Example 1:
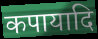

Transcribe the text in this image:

कपायादि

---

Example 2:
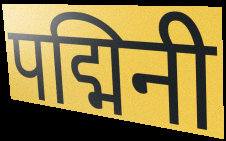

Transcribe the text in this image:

पद्मिनी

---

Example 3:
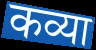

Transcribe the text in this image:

कव्या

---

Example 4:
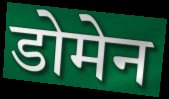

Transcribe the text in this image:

डोमेन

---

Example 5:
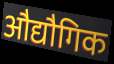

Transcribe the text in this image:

औद्यौगिक